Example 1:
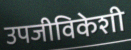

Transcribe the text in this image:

उपजीविकेशी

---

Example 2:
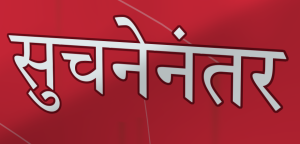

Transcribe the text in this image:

सुचनेनंतर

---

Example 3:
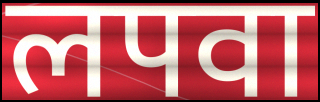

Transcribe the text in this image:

लपवा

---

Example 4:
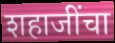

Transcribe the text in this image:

शहाजींचा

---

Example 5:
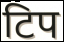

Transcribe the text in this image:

टिप